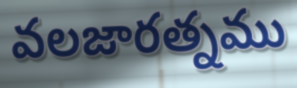
వలజారత్నము